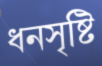
ধনসৃষ্টি